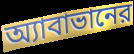
অ্যাবাভানের